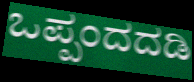
ಒಪ್ಪಂದದಡಿ